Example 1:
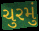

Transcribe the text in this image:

ચુરમું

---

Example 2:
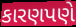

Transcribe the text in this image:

કારણપણે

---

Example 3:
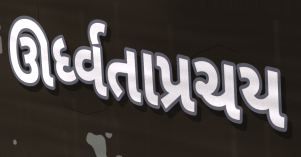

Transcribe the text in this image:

ઊર્ધ્વતાપ્રચય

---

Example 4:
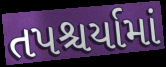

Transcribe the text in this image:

તપશ્ચર્યામાં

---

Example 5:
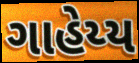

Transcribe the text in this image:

ગાહેય્ય